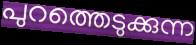
പുറത്തെടുക്കുന്ന